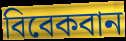
বিবেকবান